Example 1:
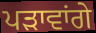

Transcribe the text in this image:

ਪੜਾਵਾਂਗੇ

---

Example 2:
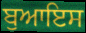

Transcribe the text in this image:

ਬੁਆਇਸ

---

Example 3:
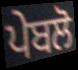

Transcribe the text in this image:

ਪੇਬਲੋ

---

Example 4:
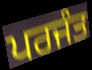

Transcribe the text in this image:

ਪਰਜੰਤ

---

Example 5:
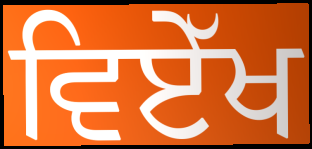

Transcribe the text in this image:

ਵਿਏੱਖ